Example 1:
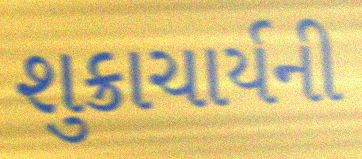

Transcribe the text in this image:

શુક્રાચાર્યની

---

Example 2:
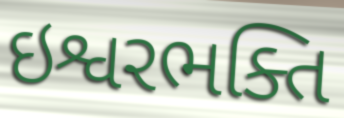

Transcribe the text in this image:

ઇશ્વરભક્તિ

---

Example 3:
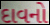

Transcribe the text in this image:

દાવનો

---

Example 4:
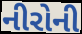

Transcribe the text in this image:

નીરોની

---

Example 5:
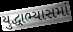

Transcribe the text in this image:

યુદ્ધાભ્યાસમાં